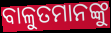
ବାଳୁତମାନଙ୍କୁ